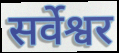
सर्वेश्वर